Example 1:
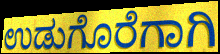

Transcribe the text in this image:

ಉಡುಗೊರೆಗಾಗಿ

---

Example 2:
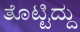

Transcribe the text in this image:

ತೊಟ್ಟಿದ್ದು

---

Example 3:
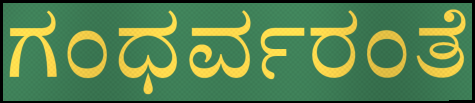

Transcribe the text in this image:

ಗಂಧರ್ವರಂತೆ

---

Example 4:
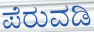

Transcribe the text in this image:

ಪೆರುವಡಿ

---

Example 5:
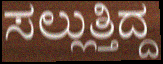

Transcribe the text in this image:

ಸಲ್ಲುತ್ತಿದ್ದ